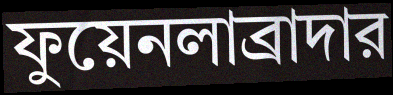
ফুয়েনলাব্রাদার